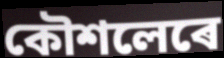
কৌশলেৰে